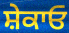
ਸ਼ੇਕਾਓ